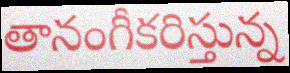
తానంగీకరిస్తున్న